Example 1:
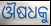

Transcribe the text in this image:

ଔଷଧକୁ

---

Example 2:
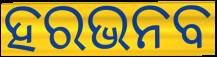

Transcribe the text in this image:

ହରଭନବ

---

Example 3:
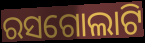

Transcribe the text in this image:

ରସଗୋଲାଟି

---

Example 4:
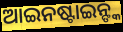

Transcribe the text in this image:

ଆଇନଷ୍ଟାଇନ୍ଙ୍କ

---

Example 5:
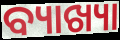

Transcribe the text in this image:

ବ୍ୟାଖ୍ୟା